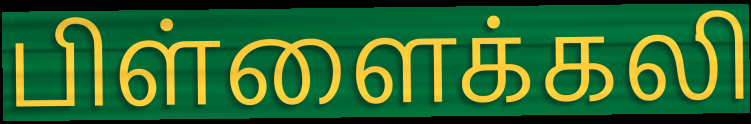
பிள்ளைக்கலி